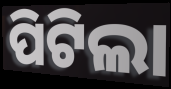
ପିଟିଲା